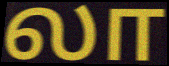
லா